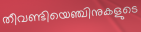
തീവണ്ടിയെഞ്ചിനുകളുടെ